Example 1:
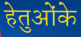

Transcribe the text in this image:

हेतुओंके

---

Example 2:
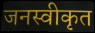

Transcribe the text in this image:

जनस्वीकृत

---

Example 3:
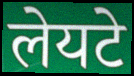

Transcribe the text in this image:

लेयटे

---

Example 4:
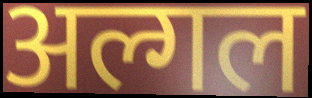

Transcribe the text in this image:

अल्गल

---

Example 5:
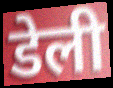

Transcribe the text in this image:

डेली